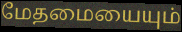
மேதமையையும்